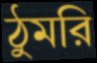
ঠুমরি